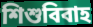
শিশুবিবাহ